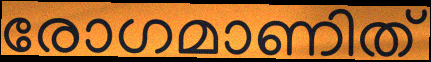
രോഗമാണിത്